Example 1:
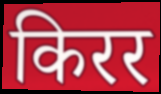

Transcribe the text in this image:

किरर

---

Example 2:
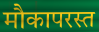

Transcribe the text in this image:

मौकापरस्त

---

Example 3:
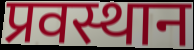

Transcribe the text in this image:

प्रवस्थान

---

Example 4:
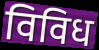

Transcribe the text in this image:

विविध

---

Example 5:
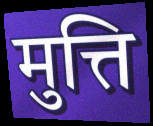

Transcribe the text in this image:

मुत्ति